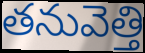
తనువెత్తి